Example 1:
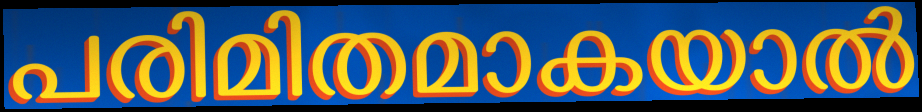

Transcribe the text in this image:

പരിമിതമാകയാൽ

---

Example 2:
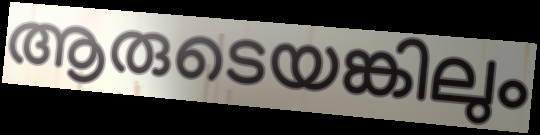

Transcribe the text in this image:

ആരുടെയങ്കിലും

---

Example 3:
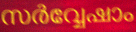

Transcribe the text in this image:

സർവ്വേഷാം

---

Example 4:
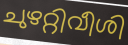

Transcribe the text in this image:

ചുഴറ്റിവീശി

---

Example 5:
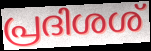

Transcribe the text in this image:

പ്രദിശശ്